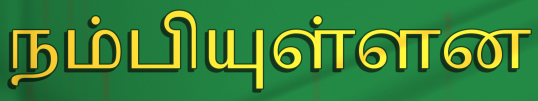
நம்பியுள்ளன